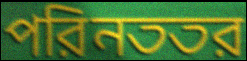
পরিনততর